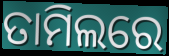
ତାମିଲରେ